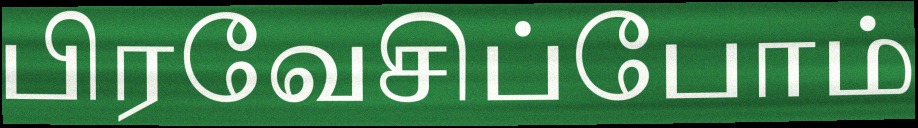
பிரவேசிப்போம்